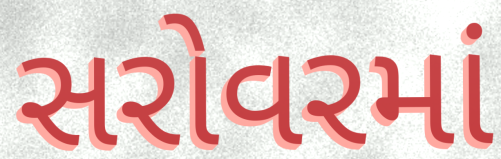
સરોવરમાં